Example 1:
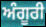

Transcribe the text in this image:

ਅੰਗੂਰੀ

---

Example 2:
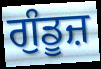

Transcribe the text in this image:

ਗੁੰਡੂਜ਼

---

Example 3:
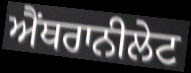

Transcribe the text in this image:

ਐਂਥਰਾਨੀਲੇਟ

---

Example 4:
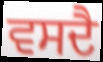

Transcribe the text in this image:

ਵਸਦੈ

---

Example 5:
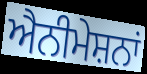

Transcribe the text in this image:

ਐਨੀਮੇਸ਼ਨਾਂ